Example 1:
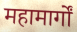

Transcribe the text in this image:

महामार्गों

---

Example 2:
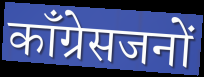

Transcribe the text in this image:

कॉंग्रेसजनों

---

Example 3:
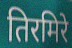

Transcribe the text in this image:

तिरमिरे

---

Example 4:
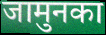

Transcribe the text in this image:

जामुनका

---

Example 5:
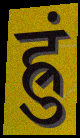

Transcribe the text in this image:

ह्रुं